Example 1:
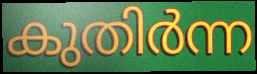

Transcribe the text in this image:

കുതിർന്ന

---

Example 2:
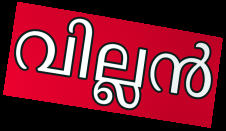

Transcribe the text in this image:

വില്ലൻ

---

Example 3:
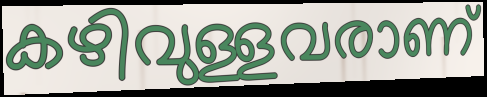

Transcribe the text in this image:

കഴിവുള്ളവരാണ്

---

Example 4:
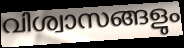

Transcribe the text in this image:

വിശ്വാസങ്ങളും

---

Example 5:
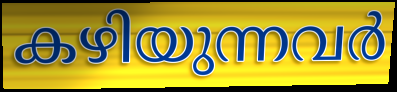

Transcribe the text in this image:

കഴിയുന്നവർ